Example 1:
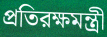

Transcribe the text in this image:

প্রতিরক্ষমন্ত্রী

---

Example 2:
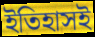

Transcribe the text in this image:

ইতিহাসই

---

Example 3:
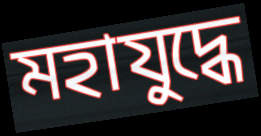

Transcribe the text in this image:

মহাযুদ্ধে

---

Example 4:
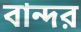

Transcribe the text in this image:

বান্দর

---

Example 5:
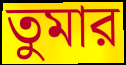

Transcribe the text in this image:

তুমার